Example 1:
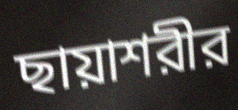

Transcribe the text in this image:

ছায়াশরীর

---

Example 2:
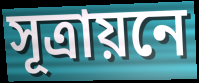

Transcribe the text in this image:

সূত্রায়নে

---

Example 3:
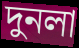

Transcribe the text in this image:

দুনলা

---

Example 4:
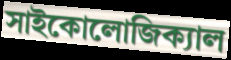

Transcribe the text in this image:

সাইকোলোজিক্যাল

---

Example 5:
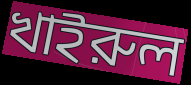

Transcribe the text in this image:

খাইরুল